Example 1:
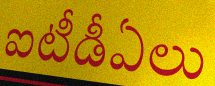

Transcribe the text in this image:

ఐటీడీఏలు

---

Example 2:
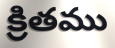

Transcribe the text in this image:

క్రితము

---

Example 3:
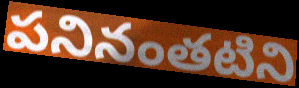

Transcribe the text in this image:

పనినంతటిని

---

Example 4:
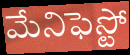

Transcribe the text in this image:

మేనిఫెస్టో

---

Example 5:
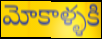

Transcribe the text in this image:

మోకాళ్ళకి